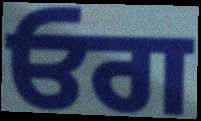
ਓਗ